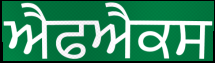
ਐਫਐਕਸ